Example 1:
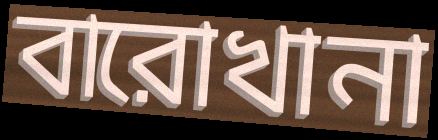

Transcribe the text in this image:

বারোখানা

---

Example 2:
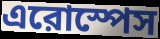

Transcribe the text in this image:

এরোস্পেস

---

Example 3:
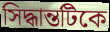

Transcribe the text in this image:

সিদ্ধান্তটিকে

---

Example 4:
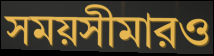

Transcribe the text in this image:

সময়সীমারও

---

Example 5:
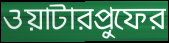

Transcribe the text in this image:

ওয়াটারপ্রুফের